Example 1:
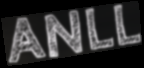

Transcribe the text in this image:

ANLL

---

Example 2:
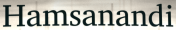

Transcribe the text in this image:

Hamsanandi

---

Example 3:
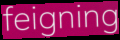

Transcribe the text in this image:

feigning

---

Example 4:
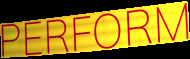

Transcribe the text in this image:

PERFORM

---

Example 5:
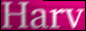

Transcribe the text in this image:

Harv